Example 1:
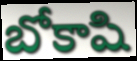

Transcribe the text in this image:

బోకాషి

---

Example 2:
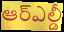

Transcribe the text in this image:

ఆర్ఎల్డీ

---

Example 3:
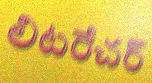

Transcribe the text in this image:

లిటరేచర్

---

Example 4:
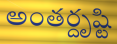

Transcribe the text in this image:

అంతర్దృష్టి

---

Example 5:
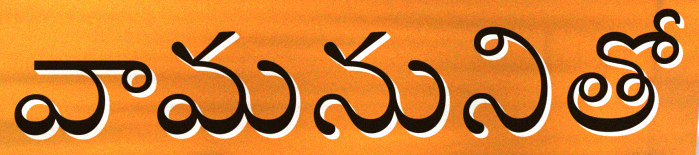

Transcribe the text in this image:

వామనునితో